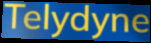
Telydyne